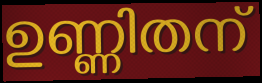
ഉണ്ണിതന്